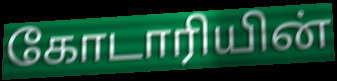
கோடாரியின்